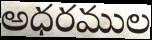
అధరముల